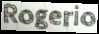
Rogerio